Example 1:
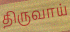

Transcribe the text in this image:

திருவாய்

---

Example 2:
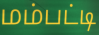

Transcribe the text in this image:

மம்பட்டி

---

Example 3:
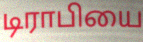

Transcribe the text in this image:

டிராபியை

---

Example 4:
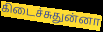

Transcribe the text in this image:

கிடைச்சுதுன்னா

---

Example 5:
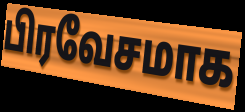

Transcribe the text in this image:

பிரவேசமாக